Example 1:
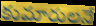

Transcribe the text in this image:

కుమారులనే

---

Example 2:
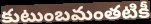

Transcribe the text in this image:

కుటుంబమంతటికీ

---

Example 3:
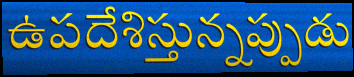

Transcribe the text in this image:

ఉపదేశిస్తున్నప్పుడు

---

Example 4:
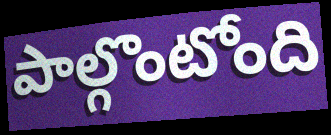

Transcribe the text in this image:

పాల్గొంటోంది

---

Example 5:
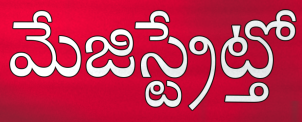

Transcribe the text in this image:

మేజిస్ట్రేట్తో